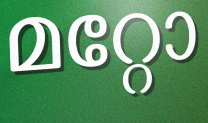
മറ്റോ